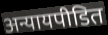
अन्यायपीडित